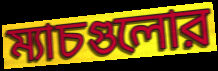
ম্যাচগুলোর